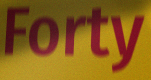
Forty